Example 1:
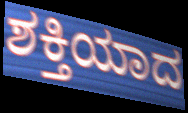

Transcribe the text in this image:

ಶಕ್ತಿಯಾದ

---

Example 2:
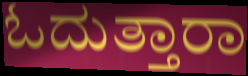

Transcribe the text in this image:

ಓದುತ್ತಾರಾ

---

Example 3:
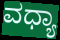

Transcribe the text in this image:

ವಧ್ಯಾ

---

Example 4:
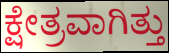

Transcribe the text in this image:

ಕ್ಷೇತ್ರವಾಗಿತ್ತು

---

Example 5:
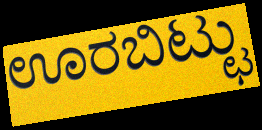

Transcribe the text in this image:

ಊರಬಿಟ್ಟು